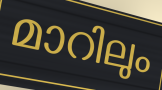
മാറിലും